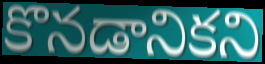
కొనడానికని